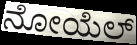
ನೋಯೆಲ್